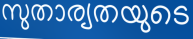
സുതാര്യതയുടെ